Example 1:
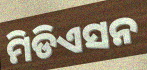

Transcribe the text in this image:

ମିଡିଏସନ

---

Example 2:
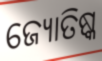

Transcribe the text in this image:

ଜ୍ୟୋତିଷ୍କ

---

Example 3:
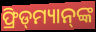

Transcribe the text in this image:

ଫ୍ରିଡ୍‌ମ୍ୟାନ୍‌ଙ୍କ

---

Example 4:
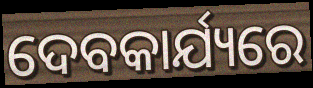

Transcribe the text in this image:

ଦେବକାର୍ଯ୍ୟରେ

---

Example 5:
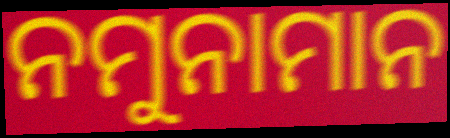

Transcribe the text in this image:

ନମୁନାମାନ